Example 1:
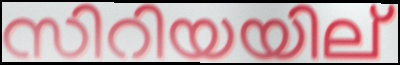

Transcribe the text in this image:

സിറിയയില്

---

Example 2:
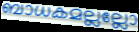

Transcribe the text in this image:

ബാധകമല്ലല്ലോ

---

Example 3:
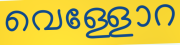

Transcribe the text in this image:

വെള്ളോറ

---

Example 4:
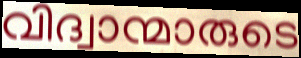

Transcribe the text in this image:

വിദ്വാന്മാരുടെ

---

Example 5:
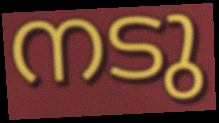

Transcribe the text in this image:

നടു